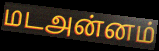
மடஅன்னம்